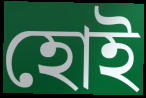
হোই